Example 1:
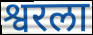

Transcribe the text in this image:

श्वरला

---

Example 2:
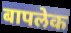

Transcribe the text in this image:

बापलेक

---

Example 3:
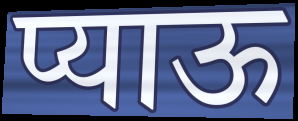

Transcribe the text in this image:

प्याऊ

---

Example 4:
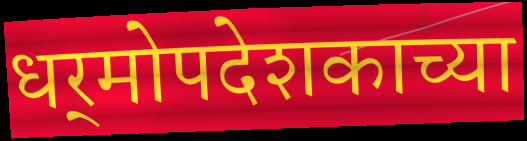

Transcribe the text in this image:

धर्मोपदेशकाच्या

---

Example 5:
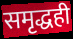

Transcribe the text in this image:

समृद्धही